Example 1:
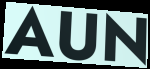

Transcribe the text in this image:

AUN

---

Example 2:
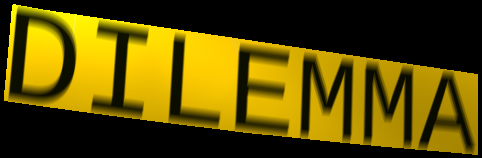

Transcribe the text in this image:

DILEMMA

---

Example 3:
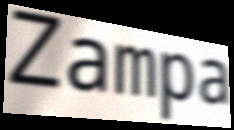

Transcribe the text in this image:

Zampa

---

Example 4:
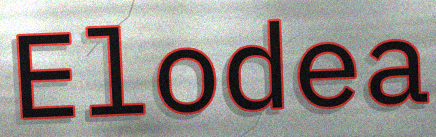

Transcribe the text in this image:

Elodea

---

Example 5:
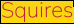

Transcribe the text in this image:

Squires